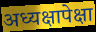
अध्यक्षापेक्षा